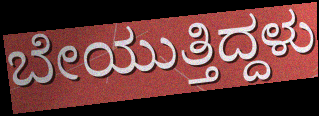
ಬೇಯುತ್ತಿದ್ದಳು